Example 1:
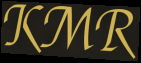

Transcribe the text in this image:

KMR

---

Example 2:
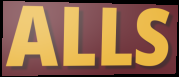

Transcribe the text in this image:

ALLS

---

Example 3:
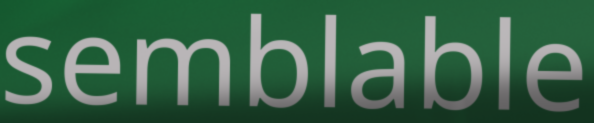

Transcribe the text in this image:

semblable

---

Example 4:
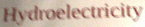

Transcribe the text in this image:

Hydroelectricity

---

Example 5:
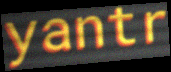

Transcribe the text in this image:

yantr